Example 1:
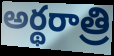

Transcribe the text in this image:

అర్థరాత్రి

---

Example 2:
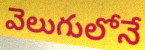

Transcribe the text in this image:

వెలుగులోనే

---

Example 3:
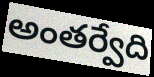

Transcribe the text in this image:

అంతర్వేది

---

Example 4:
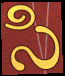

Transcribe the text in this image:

సి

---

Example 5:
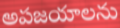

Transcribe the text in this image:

అపజయాలను